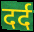
दर्द